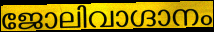
ജോലിവാഗ്ദാനം